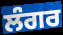
ਲੰਗਰ